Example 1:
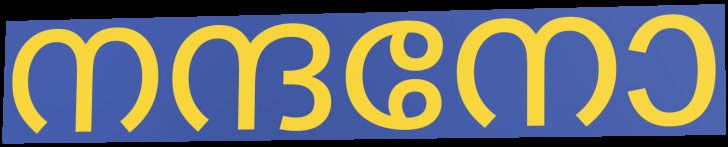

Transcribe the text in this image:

നന്ദനോ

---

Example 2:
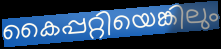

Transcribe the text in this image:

കൈപ്പറ്റിയെങ്കിലും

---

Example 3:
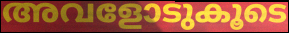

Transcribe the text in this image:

അവളോടുകൂടെ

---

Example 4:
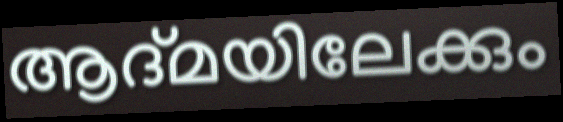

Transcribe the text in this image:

ആദ്മയിലേക്കും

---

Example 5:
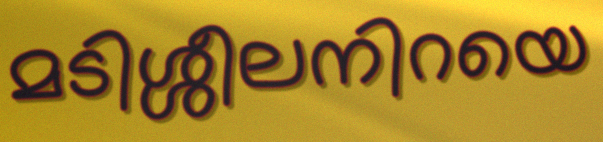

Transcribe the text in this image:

മടിശ്ശീലനിറയെ